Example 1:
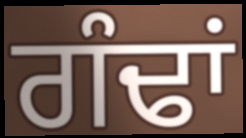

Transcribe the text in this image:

ਗੰਢਾਂ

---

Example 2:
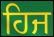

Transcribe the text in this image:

ਹਿਜ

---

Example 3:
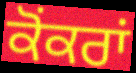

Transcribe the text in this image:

ਕੋਂਕਰਾਂ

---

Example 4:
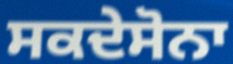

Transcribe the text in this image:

ਸਕਦੇਸੋਨਾ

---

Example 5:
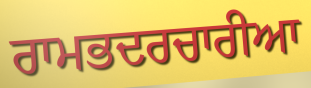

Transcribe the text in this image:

ਰਾਮਭਦਰਚਾਰੀਆ